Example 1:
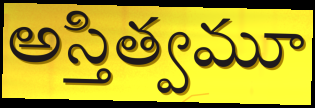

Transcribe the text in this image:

అస్తిత్వమూ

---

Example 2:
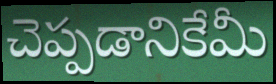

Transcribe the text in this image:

చెప్పడానికేమీ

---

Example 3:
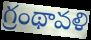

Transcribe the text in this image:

గ్రంథావళి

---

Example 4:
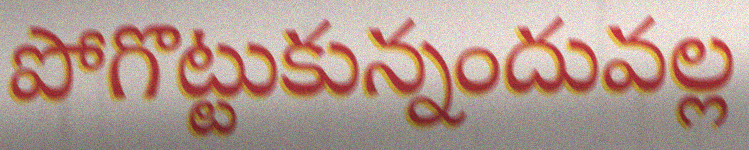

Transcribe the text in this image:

పోగొట్టుకున్నందువల్ల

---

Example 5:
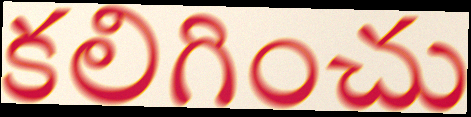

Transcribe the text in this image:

కలిగించు